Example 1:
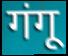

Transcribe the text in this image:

गंगू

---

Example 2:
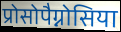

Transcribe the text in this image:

प्रोसोपैग्नोसिया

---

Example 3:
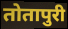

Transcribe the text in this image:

तोतापुरी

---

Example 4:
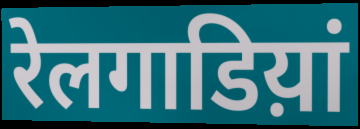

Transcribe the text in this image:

रेलगाडिय़ां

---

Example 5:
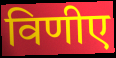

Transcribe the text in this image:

विणीए